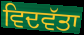
ਵਿਦਵੱਤਾ